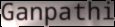
Ganpathi